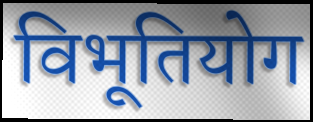
विभूतियोग